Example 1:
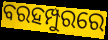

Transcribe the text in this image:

ବରହମ୍ପୁରରେ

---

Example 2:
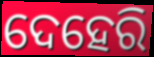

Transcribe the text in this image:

ଦେହେରି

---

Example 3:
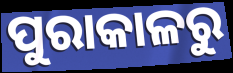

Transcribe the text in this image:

ପୁରାକାଳରୁ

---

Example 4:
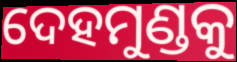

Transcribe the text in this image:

ଦେହମୁଣ୍ଡକୁ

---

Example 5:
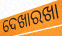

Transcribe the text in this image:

ଦେଖାରଖା